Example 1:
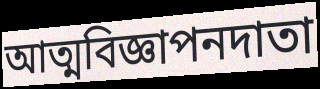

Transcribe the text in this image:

আত্মবিজ্ঞাপনদাতা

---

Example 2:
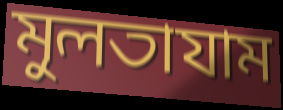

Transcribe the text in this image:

মুলতাযাম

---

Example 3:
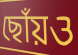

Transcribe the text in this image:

ছোঁয়ও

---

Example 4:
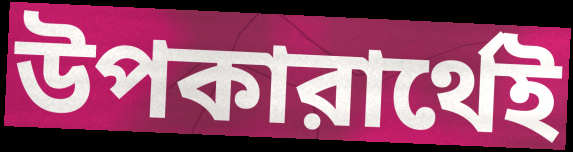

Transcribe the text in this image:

উপকারার্থেই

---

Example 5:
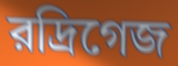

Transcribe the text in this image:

রদ্রিগেজ